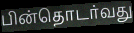
பின்தொடர்வது